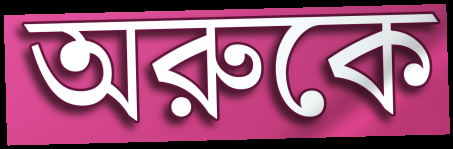
অরুকে